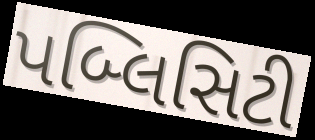
પબ્લિસિટી